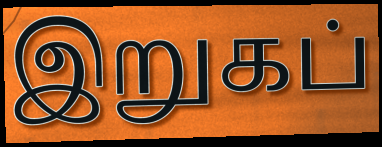
இறுகப்